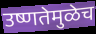
उष्णतेमुळेच